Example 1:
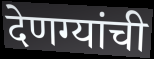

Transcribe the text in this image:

देणग्यांची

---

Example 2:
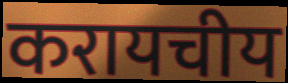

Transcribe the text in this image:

करायचीय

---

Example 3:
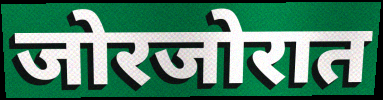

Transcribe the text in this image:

जोरजोरात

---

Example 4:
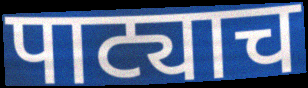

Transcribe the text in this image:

पाट्याच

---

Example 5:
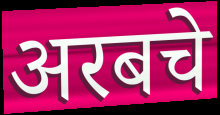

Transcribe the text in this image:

अरबचे